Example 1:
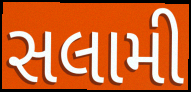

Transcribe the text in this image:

સલામી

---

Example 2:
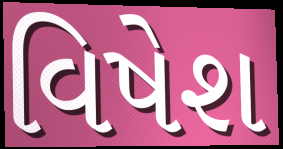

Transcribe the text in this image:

વિષેશ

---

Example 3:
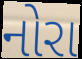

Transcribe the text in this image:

નોરા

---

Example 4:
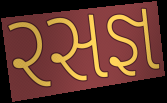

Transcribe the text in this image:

રસજ્ઞ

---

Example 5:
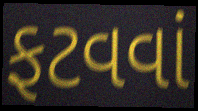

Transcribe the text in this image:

ફટવવાં